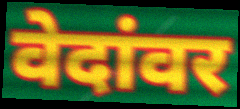
वेदांवर